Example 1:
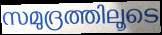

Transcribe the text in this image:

സമുദ്രത്തിലൂടെ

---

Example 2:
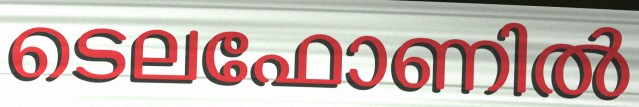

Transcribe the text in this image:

ടെലഫോണിൽ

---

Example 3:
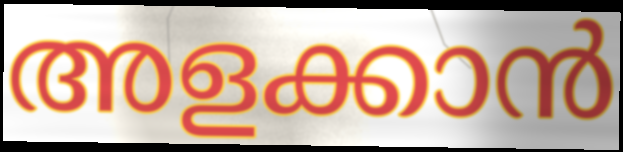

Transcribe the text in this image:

അളക്കാൻ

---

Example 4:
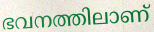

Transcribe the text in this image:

ഭവനത്തിലാണ്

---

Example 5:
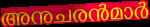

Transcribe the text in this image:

അനുചരൻമാർ